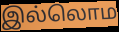
இல்லொம